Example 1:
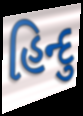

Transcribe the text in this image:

હિન્દુ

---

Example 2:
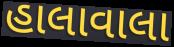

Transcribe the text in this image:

હાલાવાલા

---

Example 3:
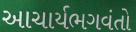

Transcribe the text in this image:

આચાર્યભગવંતો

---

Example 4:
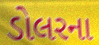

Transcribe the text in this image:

ડોલરના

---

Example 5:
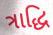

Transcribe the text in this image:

ત્રાદ્ધિ